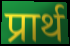
प्रार्थ